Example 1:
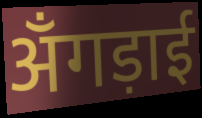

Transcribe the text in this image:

अँगड़ाई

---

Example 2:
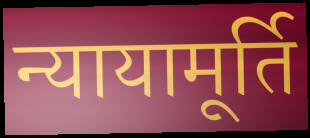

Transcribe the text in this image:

न्यायामूर्ति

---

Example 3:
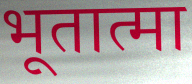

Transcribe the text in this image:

भूतात्मा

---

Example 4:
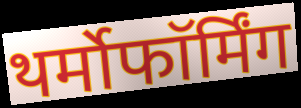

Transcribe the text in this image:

थर्मोफॉर्मिंग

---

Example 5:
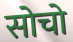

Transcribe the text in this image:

सोचो